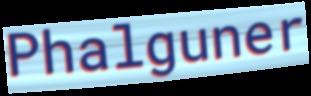
Phalguner